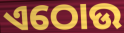
ଏଠୋଉ